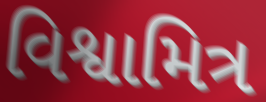
વિશ્વામિત્ર